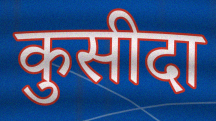
कुसीदा